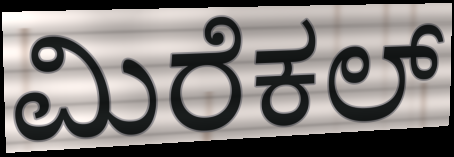
ಮಿರೆಕಲ್